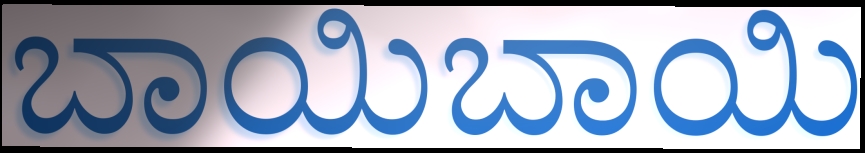
ಬಾಯಿಬಾಯಿ